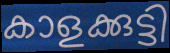
കാളക്കുട്ടി